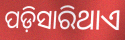
ପଡ଼ିସାରିଥାଏ